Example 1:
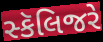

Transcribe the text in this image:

સ્કૅલિજરે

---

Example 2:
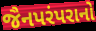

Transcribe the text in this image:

જૈનપરંપરાનો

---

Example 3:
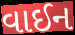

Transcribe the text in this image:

વાઈન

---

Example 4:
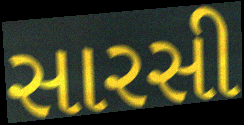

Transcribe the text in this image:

સારસી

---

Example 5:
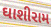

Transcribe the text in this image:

ઘાશીરામ